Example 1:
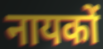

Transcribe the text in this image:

नायकों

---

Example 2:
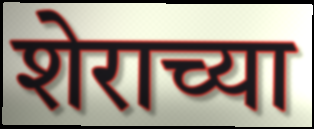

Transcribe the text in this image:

शेराच्या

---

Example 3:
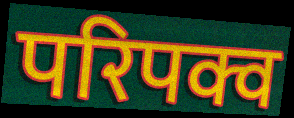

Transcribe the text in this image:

परिपक्व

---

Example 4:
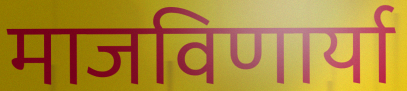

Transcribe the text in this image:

माजविणार्या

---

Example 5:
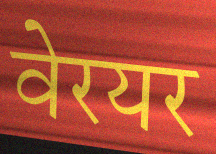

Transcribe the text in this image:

वेरयर